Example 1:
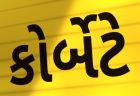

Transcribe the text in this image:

કોર્બેટે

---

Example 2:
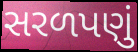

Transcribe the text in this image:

સરળપણું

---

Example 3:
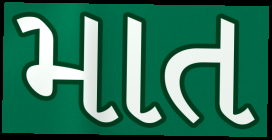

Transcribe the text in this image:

માત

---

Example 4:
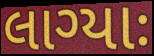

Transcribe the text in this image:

લાગ્યાઃ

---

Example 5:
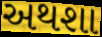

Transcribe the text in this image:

અથશા